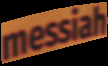
messiah